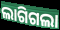
ଲାଗିଗଲା